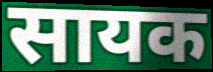
सायक